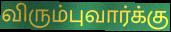
விரும்புவார்க்கு